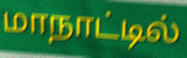
மாநாட்டில்